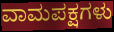
ವಾಮಪಕ್ಷಗಳು